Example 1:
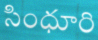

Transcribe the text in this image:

సింధూరి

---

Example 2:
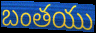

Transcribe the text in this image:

బంతయు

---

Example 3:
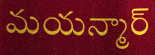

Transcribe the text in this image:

మయన్మార్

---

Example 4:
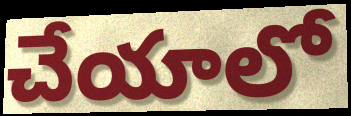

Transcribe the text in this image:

చేయాలో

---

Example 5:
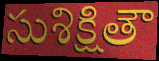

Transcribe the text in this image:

సుశిక్షితౌ